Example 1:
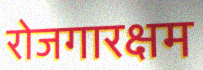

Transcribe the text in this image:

रोजगारक्षम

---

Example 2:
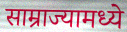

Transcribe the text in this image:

साम्राज्यामध्ये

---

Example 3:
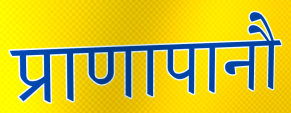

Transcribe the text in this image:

प्राणापानौ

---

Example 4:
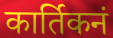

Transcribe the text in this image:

कार्तिकनं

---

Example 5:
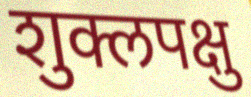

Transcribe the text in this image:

शुक्लपक्षु